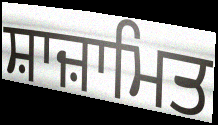
ਸ਼ਾਜ਼ਾਮਿਤ